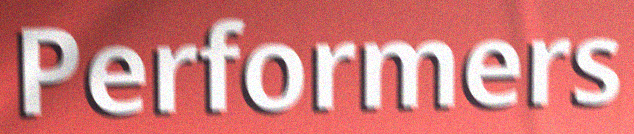
Performers